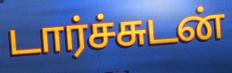
டார்ச்சுடன்